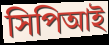
সিপিআই